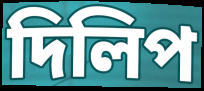
দিলিপ